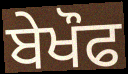
ਬੇਖੌਫ